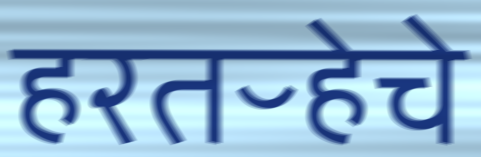
हरतऱ्हेचे